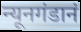
न्यूनगंडानं